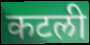
कटली